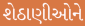
શેઠાણીઓને